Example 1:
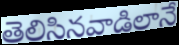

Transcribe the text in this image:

తెలిసినవాడిలానే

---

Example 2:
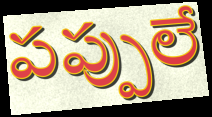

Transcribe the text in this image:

పప్పులే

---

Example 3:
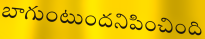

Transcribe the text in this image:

బాగుంటుందనిపించింది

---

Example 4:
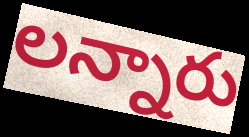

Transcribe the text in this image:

లన్నారు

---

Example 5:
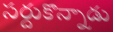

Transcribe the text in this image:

సర్దుకొన్నాడు